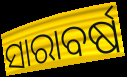
ସାରାବର୍ଷ